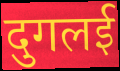
दुगलई